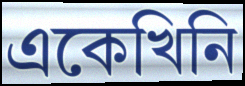
একেখিনি